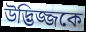
উদ্ভিজ্জকে